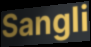
Sangli